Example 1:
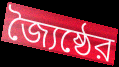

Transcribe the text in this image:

জ্যৈষ্ঠের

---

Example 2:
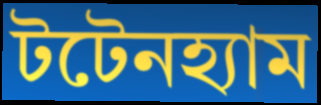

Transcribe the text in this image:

টটেনহ্যাম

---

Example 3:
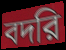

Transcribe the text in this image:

বদরি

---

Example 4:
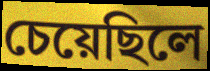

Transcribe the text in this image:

চেয়েছিলে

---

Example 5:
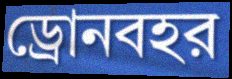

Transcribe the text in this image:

ড্রোনবহর